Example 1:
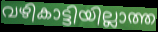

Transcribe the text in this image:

വഴികാട്ടിയില്ലാത്ത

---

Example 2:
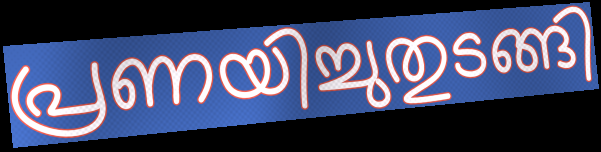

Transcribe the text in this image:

പ്രണയിച്ചുതുടങ്ങി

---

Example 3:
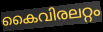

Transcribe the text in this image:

കൈവിരലറ്റം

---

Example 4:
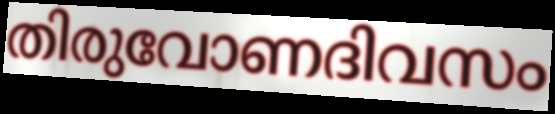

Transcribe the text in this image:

തിരുവോണദിവസം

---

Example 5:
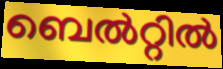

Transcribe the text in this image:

ബെൽറ്റിൽ